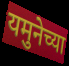
यमुनेच्या